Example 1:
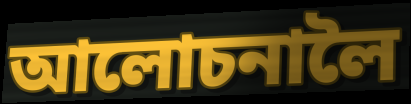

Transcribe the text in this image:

আলোচনালৈ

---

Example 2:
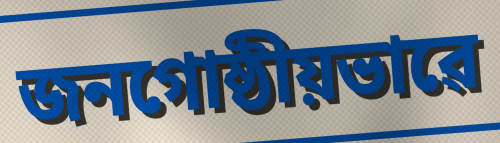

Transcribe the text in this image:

জনগোষ্ঠীয়ভাৱে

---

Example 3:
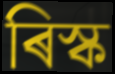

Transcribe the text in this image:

ৰিস্ক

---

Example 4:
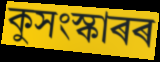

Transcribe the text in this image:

কুসংস্কাৰৰ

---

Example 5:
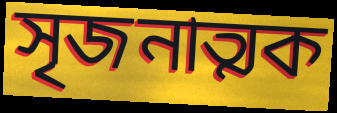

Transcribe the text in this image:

সৃজনাত্মক